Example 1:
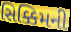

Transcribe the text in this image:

સિક્કિમની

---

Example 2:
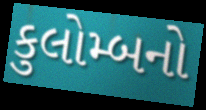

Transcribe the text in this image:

કુલોમ્બનો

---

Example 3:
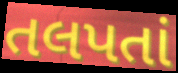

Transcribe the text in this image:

તલપતાં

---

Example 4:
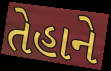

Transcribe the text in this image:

તેહાને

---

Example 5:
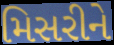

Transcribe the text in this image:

મિસરીને